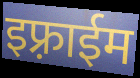
इफ़्राईम